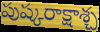
పుష్కరాక్షాశ్చ